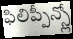
ఫిలిప్పీన్స్లో